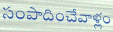
సంపాదించేవాళ్లం